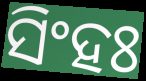
ସିଂହଃ